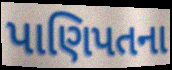
પાણિપતના